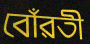
বোঁৱতী